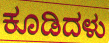
ಕೂಡಿದಳು